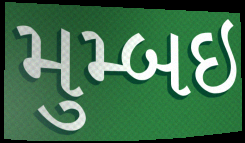
મુમ્બઇ